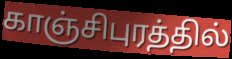
காஞ்சிபுரத்தில்